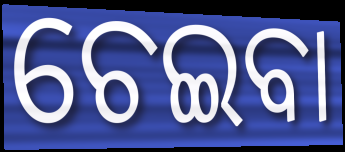
ଚେଇବା